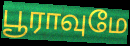
பூராவுமே